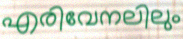
എരിവേനലിലും